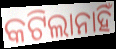
କଟିଲାନାହିଁ